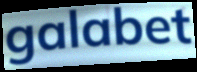
galabet